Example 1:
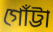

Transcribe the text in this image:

গোঁট্টা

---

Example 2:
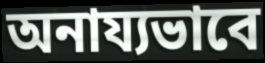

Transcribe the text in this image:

অনায্যভাবে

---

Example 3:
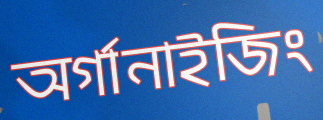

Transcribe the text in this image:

অর্গানাইজিং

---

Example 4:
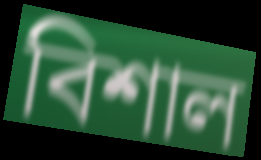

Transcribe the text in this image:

বিশাল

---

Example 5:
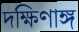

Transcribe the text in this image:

দক্ষিণাঙ্গ